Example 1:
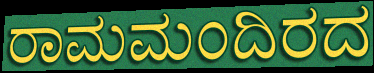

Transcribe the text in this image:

ರಾಮಮಂದಿರದ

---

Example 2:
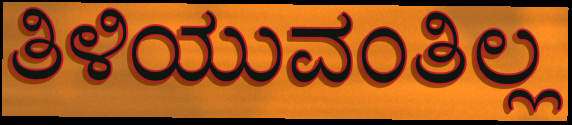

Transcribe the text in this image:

ತಿಳಿಯುವಂತಿಲ್ಲ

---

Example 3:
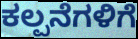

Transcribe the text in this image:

ಕಲ್ಪನೆಗಳಿಗೆ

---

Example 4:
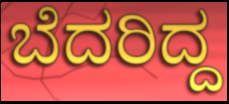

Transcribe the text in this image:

ಬೆದರಿದ್ದ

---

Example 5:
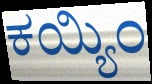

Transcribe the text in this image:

ಕಯ್ಯಿಂ